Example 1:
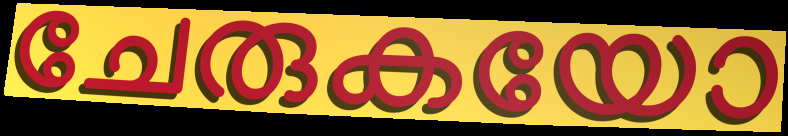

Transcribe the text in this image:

ചേരുകയോ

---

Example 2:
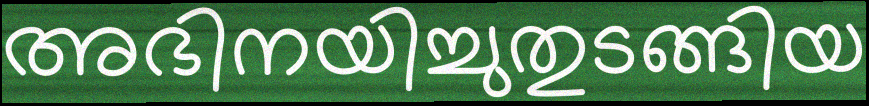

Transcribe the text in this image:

അഭിനയിച്ചുതുടങ്ങിയ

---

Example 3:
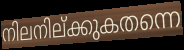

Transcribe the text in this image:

നിലനില്ക്കുകതന്നെ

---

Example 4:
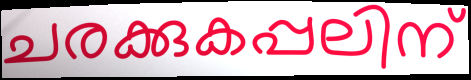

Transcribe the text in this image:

ചരക്കുകപ്പലിന്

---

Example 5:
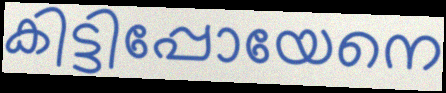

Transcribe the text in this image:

കിട്ടിപ്പോയേനെ